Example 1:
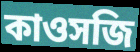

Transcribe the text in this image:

কাওসজি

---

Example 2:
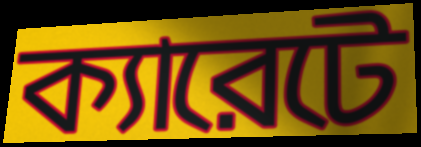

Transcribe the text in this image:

ক্যারেটে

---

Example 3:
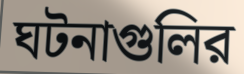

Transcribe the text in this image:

ঘটনাগুলির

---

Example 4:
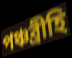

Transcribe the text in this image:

পঞ্চব্রীহি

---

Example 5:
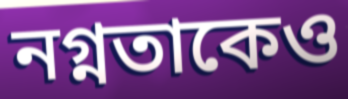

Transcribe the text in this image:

নগ্নতাকেও